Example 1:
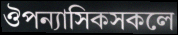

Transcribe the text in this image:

ঔপন্যাসিকসকলে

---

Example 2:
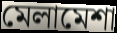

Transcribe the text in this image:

মেলামেশা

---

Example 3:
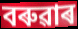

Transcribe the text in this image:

বৰুৱাৰ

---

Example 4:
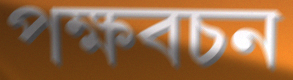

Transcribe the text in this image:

পক্ষবচন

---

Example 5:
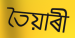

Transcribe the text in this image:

তৈয়াৰী